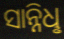
ସାନ୍ନିଧୢ